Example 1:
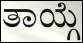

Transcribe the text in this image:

ತಾಯ್ಗೆ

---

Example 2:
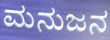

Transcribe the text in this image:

ಮನುಜನ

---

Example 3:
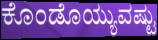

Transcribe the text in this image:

ಕೊಂಡೊಯ್ಯುವಷ್ಟು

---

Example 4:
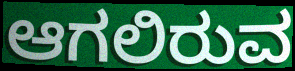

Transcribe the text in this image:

ಆಗಲಿರುವ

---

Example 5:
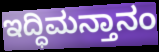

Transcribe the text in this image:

ಇದ್ಧಿಮನ್ತಾನಂ